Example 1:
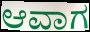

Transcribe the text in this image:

ಆವಾಗ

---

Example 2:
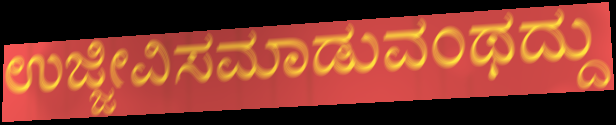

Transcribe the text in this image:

ಉಜ್ಜೀವಿಸಮಾಡುವಂಥದ್ದು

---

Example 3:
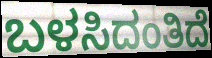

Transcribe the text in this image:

ಬಳಸಿದಂತಿದೆ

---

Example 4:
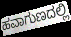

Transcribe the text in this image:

ಹವಾಗುಣದಲ್ಲಿ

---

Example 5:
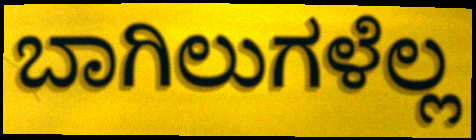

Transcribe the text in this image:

ಬಾಗಿಲುಗಳೆಲ್ಲ